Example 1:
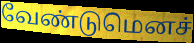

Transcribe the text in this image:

வேண்டுமெனச்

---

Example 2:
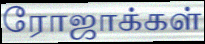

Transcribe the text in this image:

ரோஜாக்கள்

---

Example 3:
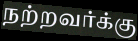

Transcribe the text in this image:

நற்றவர்க்கு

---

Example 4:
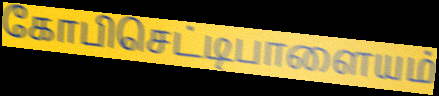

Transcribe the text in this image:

கோபிசெட்டிபாளையம்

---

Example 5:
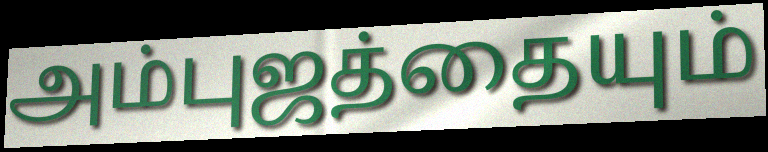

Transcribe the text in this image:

அம்புஜத்தையும்